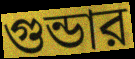
গুন্ডার